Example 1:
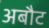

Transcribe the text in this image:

अबौट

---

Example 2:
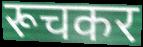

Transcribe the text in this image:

रूचकर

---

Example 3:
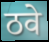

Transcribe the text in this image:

ठवे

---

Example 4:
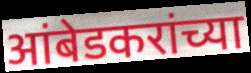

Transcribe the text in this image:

आंबेडकरांच्या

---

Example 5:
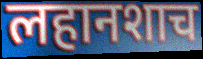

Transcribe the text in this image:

लहानशाच